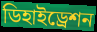
ডিহাইড্রেশন